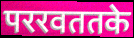
पररवततके